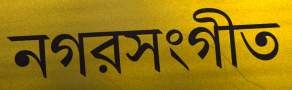
নগরসংগীত